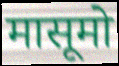
मासूमो